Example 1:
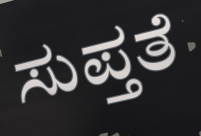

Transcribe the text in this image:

ಸುಪ್ತತೆ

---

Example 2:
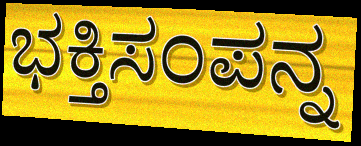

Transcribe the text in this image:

ಭಕ್ತಿಸಂಪನ್ನ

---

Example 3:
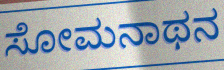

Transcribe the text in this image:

ಸೋಮನಾಥನ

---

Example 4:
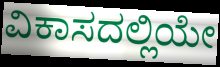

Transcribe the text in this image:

ವಿಕಾಸದಲ್ಲಿಯೇ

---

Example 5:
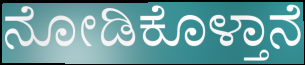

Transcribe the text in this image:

ನೋಡಿಕೊಳ್ತಾನೆ